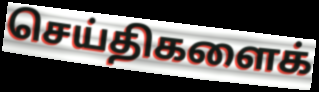
செய்திகளைக்